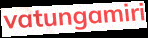
vatungamiri